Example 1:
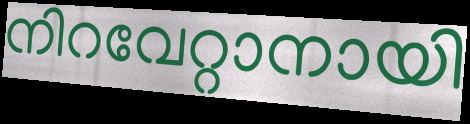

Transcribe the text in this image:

നിറവേറ്റാനായി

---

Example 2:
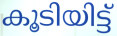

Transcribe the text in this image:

കൂടിയിട്ട്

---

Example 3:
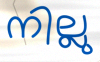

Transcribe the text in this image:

നില്ലു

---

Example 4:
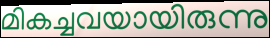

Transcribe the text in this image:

മികച്ചവയായിരുന്നു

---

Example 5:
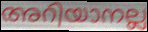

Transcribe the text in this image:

അറിയാനല്ല